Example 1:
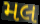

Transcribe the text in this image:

મલ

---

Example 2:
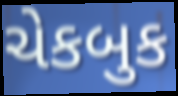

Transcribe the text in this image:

ચેકબુક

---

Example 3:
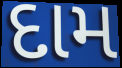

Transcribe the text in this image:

દામ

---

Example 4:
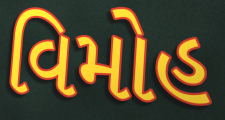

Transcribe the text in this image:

વિમોહ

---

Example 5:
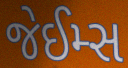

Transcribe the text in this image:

જેઈમ્સ